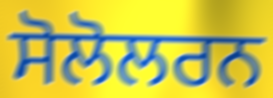
ਸੋਲੋਲਰਨ